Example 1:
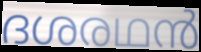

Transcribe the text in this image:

ദശരഥൻ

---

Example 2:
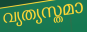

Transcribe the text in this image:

വ്യത്യസ്തമാ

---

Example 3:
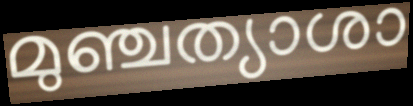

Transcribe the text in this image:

മുഞ്ചത്യാശാ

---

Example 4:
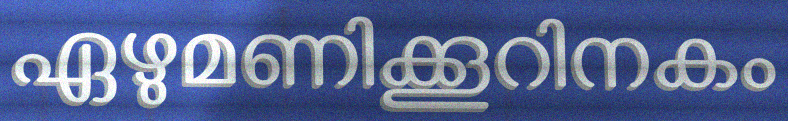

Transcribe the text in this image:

ഏഴുമണിക്കൂറിനകം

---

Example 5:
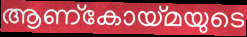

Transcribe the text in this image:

ആണ്കോയ്മയുടെ